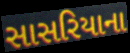
સાસરિયાના